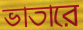
ভাতারে